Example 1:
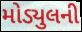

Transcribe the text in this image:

મોડ્યુલની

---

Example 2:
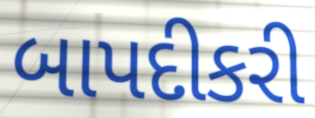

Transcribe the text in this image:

બાપદીકરી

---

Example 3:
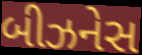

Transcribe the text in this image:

બીઝનેસ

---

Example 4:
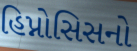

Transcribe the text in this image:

હિપ્નોસિસનો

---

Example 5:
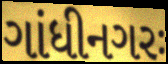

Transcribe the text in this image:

ગાંધીનગરઃ